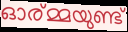
ഓര്മ്മയുണ്ട്